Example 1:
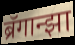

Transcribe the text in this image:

ब्रॅगान्झा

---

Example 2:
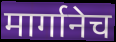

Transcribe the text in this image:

मार्गानेच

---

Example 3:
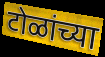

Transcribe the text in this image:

टोळांच्या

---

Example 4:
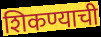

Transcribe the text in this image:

शिकण्याची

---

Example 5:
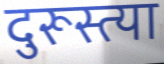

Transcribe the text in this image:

दुरूस्त्या